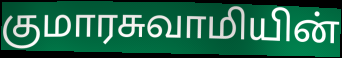
குமாரசுவாமியின்